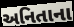
અનિતાના